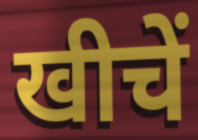
खीचें